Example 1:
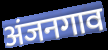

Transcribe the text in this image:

अंजनगाव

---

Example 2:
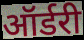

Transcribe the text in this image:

ऑर्डरी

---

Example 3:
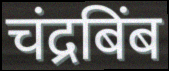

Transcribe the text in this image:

चंद्रबिंब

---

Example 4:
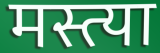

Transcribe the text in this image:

मस्त्या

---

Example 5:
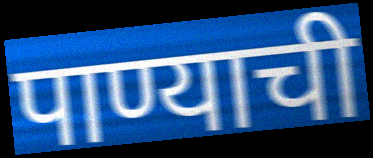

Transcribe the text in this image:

पाण्याची